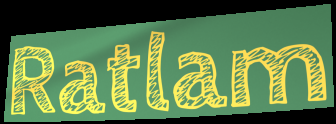
Ratlam